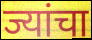
ज्यांचा